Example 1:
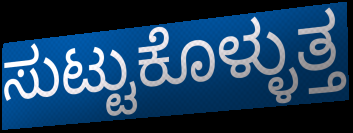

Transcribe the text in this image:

ಸುಟ್ಟುಕೊಳ್ಳುತ್ತ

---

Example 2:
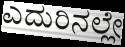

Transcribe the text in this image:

ಎದುರಿನಲ್ಲೇ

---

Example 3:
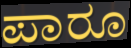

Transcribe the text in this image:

ಪಾರೂ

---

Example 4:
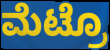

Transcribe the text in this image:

ಮೆಟ್ರೊ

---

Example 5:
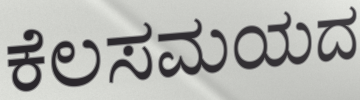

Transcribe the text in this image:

ಕೆಲಸಮಯದ